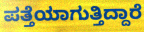
ಪತ್ತೆಯಾಗುತ್ತಿದ್ದಾರೆ